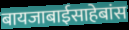
बायजाबाईसाहेबांस